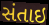
સંતાઇ